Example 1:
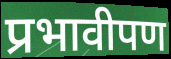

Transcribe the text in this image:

प्रभावीपण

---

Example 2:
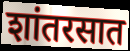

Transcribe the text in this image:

शांतरसात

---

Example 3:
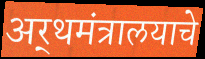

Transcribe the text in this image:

अर्थमंत्रालयाचे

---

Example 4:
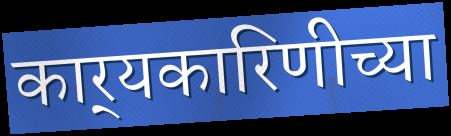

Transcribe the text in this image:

कार्यकारिणीच्या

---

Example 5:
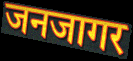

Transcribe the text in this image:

जनजागर